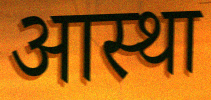
आस्था